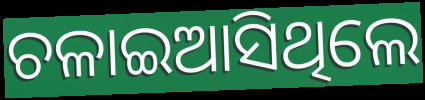
ଚଳାଇଆସିଥିଲେ